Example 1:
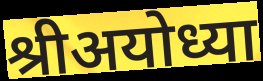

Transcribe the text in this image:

श्रीअयोध्या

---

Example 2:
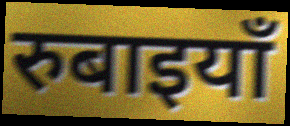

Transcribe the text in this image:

रुबाइयाँ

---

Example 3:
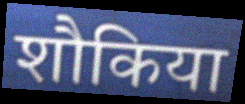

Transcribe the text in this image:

शौकिया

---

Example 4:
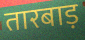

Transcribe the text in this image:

तारबाड़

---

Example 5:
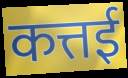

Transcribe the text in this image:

कत्तई